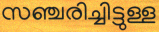
സഞ്ചരിച്ചിട്ടുള്ള